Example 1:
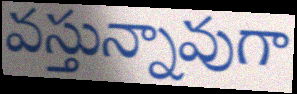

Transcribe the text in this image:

వస్తున్నావుగా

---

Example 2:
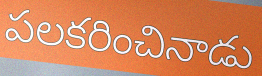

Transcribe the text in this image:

పలకరించినాడు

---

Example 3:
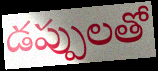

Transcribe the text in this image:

డప్పులతో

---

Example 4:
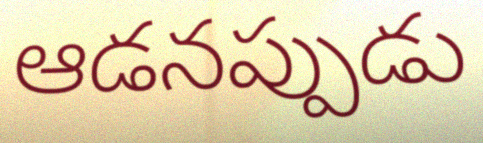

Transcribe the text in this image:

ఆడనప్పుడు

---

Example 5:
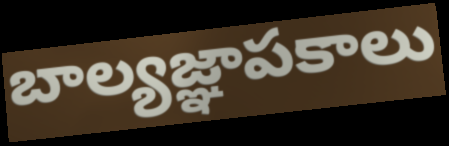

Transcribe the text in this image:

బాల్యజ్ఞాపకాలు